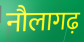
नौलागढ़